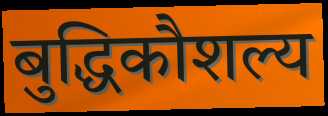
बुद्धिकौशल्य